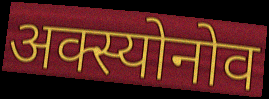
अक्स्योनोव